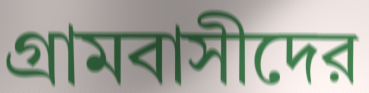
গ্রামবাসীদের